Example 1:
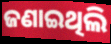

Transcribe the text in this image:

ଜଣାଇଥିଲି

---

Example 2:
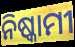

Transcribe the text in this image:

ନିଷ୍କାମୀ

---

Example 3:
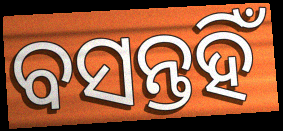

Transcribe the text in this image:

ବସନ୍ତହିଁ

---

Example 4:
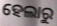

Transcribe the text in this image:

ହେଲାରୁ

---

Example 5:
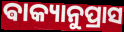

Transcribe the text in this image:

ଵାକ୍ୟାନୁପ୍ରାସ